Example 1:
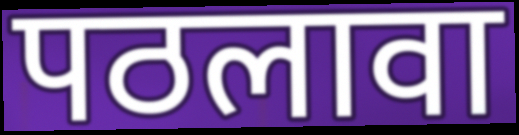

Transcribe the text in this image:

पठलावा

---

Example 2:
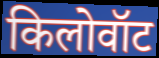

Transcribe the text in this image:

किलोवॉट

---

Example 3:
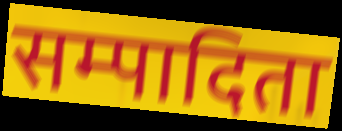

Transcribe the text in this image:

सम्पादिता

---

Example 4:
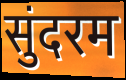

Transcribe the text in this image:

सुंदरम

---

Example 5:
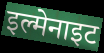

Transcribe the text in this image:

इल्मेनाइट